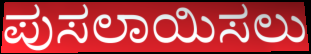
ಪುಸಲಾಯಿಸಲು